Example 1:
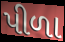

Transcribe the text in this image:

પીળા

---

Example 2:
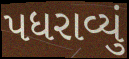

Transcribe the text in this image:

પધરાવ્યું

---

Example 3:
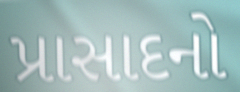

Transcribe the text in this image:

પ્રાસાદનો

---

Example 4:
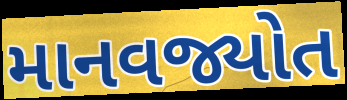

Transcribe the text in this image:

માનવજ્યોત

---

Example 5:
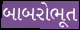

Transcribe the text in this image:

બાબરોભૂત